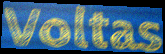
Voltas